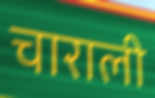
चाराली